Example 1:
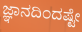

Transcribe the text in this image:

ಜ್ಞಾನದಿಂದಷ್ಟೇ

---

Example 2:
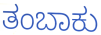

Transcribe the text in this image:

ತಂಬಾಕು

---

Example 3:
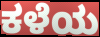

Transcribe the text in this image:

ಕಳೆಯ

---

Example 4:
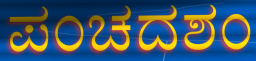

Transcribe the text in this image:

ಪಂಚದಶಂ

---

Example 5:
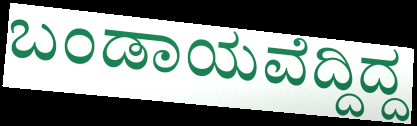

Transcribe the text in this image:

ಬಂಡಾಯವೆದ್ದಿದ್ದ